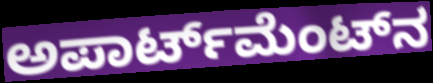
ಅಪಾರ್ಟ್‌ಮೆಂಟ್‌ನ